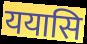
ययासि